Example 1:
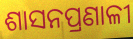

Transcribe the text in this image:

ଶାସନପ୍ରଣାଳୀ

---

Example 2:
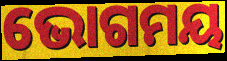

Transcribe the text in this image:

ଭୋଗମୟ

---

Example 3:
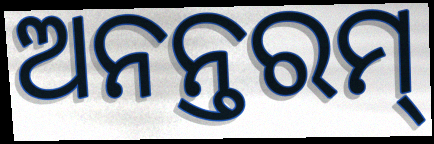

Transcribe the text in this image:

ଅନନ୍ତରମ୍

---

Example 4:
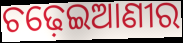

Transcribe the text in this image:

ଚଢ଼େଇଆଣୀର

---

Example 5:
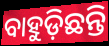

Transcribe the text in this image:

ବାହୁଡ଼ିଛନ୍ତି